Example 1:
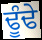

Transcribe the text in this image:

ਢੂੰਢੇ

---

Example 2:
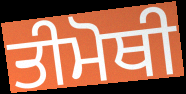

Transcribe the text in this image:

ਤੀਮੋਥੀ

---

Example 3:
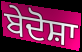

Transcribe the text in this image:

ਬੇਦੋਸ਼ਾ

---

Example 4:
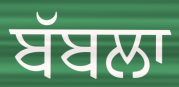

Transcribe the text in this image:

ਬੱਬਲਾ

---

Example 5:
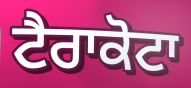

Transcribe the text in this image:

ਟੈਰਾਕੋਟਾ